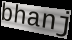
bhanj